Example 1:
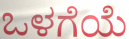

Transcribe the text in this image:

ಒಳಗೆಯೆ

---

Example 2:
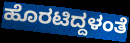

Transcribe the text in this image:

ಹೊರಟಿದ್ದಳಂತೆ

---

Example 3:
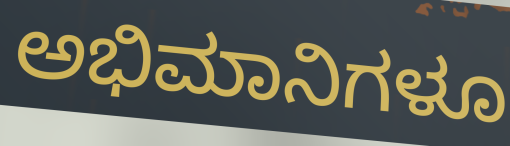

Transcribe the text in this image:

ಅಭಿಮಾನಿಗಳೂ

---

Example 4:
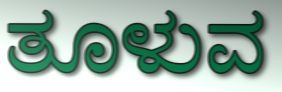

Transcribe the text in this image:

ತೂಳುವ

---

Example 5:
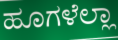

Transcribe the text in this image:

ಹೂಗಳೆಲ್ಲಾ